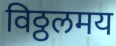
विठ्ठलमय